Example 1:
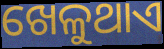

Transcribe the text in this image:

ଖେଳୁଥାଏ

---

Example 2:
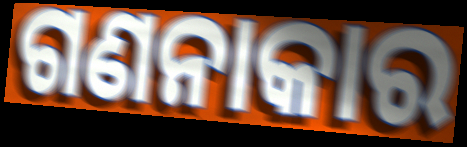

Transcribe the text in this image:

ଗଣନାକାର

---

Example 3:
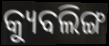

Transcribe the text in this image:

କ୍ୟୁବଲିଙ୍ଗ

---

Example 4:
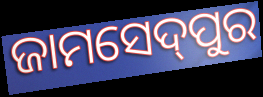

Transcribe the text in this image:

ଜାମସେଦ୍‌ପୁର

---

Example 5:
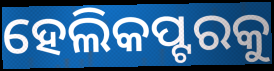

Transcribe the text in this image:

ହେଲିକପ୍ଟରକୁ